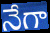
నేగా